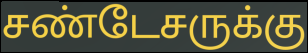
சண்டேசருக்கு